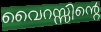
വൈറസ്സിന്റെ